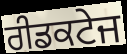
ਰੀਡਕਟੇਜ